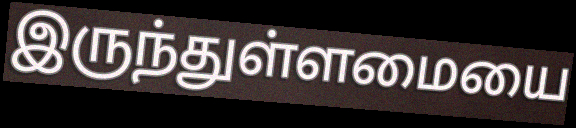
இருந்துள்ளமையை